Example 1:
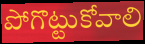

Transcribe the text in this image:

పోగొట్టుకోవాలి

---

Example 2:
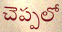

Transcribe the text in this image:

చెప్పలో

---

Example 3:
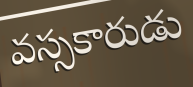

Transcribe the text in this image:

వస్సకారుడు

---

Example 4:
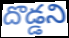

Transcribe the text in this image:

దొడ్డని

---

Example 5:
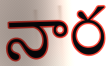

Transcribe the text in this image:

నార